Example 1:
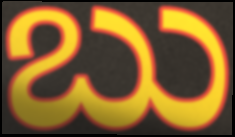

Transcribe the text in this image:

బు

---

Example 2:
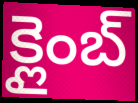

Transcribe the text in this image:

క్లైంబ్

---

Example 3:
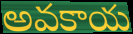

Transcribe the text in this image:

అవకాయ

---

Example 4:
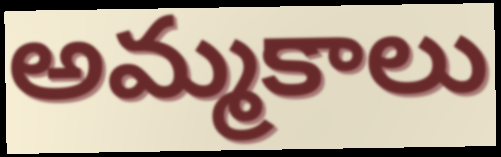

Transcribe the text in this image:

అమ్మకాలు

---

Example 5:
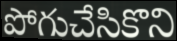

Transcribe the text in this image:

పోగుచేసికొని